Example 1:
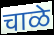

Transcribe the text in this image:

चाळे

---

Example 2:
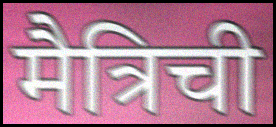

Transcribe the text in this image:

मैत्रिची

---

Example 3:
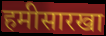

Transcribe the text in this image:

हमीसारखा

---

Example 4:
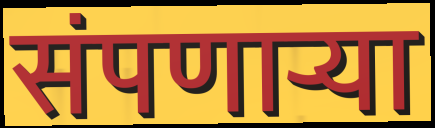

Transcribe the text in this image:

संपणार्‍या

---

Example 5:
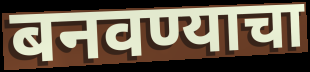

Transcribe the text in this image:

बनवण्याचा